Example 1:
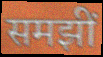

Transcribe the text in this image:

समझीं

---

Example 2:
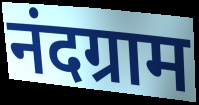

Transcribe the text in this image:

नंदग्राम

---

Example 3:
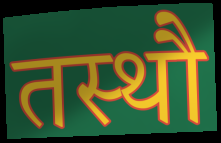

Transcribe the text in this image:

तस्थौ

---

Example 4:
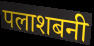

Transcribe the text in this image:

पलाशबनी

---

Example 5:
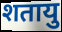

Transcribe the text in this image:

शतायु